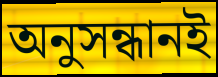
অনুসন্ধানই